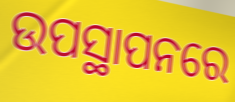
ଉପସ୍ଥାପନରେ